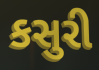
કસુરી